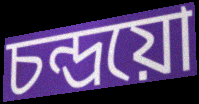
চন্দ্ৰয়ো